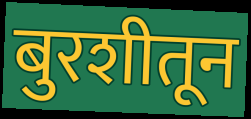
बुरशीतून